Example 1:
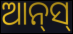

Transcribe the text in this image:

ଆନ୍‌ସ୍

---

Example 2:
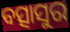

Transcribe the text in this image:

ବତ୍ସାସୁର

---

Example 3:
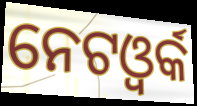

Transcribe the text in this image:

ନେଟଓ୍ବର୍କ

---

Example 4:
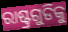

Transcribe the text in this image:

ରାଷ୍ଟ୍ରଗୁଡିକୁ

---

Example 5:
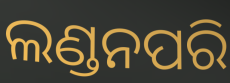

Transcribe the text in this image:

ଲଣ୍ଡନପରି